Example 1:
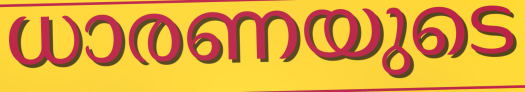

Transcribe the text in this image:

ധാരണയുടെ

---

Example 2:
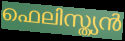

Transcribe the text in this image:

ഫെലിസ്ത്യൻ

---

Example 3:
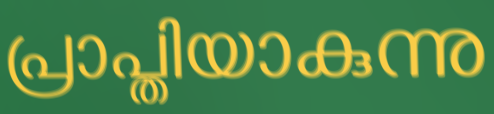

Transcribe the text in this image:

പ്രാപ്തിയാകുന്നു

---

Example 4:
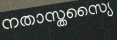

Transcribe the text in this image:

നതാസ്തസ്യൈ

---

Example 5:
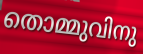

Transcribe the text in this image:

തൊമ്മുവിനു